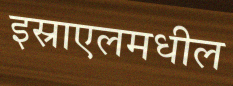
इस्राएलमधील